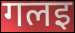
गलइ